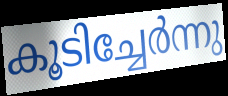
കൂടിച്ചേർന്നു